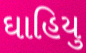
ઘાહિયુ